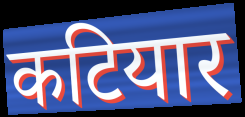
कटियार